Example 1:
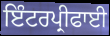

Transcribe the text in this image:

ਇੰਟਰਪ੍ਰੀਫਾਈ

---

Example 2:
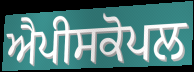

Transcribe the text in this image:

ਐਪੀਸਕੋਪਲ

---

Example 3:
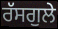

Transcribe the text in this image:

ਰੱਸਗੁਲੇ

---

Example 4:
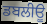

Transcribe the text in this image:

ਡਬਲੀਊ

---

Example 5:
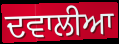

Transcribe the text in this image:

ਦਵਾਲੀਆ